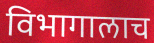
विभागालाच